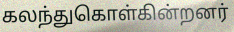
கலந்துகொள்கின்றனர்